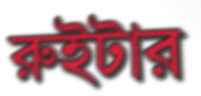
রুইটার